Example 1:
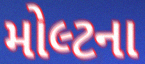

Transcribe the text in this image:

મોલ્ટના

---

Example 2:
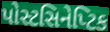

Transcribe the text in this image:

પોસ્ટસિનેપ્ટિક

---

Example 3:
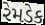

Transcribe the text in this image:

રેમડેક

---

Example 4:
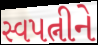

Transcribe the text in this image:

સ્વપત્નીને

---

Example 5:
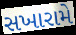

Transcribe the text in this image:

સખારામે